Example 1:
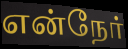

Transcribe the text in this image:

என்நேர்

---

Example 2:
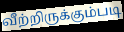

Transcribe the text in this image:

வீற்றிருக்கும்படி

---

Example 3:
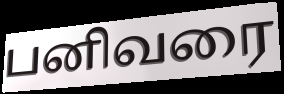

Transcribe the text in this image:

பனிவரை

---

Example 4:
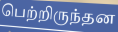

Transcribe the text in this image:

பெற்றிருந்தன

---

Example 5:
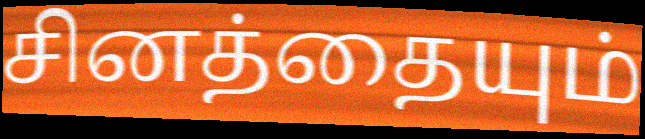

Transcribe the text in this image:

சினத்தையும்